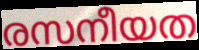
രസനീയത